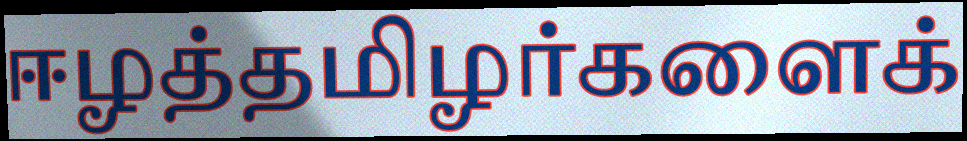
ஈழத்தமிழர்களைக்